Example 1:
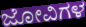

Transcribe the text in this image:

ಜೋವಿಗಳ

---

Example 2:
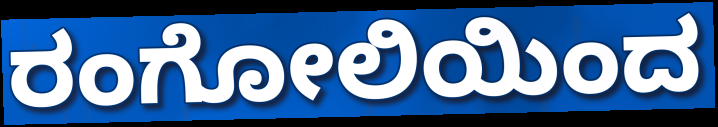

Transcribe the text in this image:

ರಂಗೋಲಿಯಿಂದ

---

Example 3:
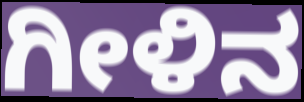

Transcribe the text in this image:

ಗೀಳಿನ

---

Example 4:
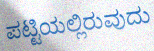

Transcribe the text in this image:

ಪಟ್ಟಿಯಲ್ಲಿರುವುದು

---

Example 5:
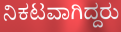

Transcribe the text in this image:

ನಿಕಟವಾಗಿದ್ದರು